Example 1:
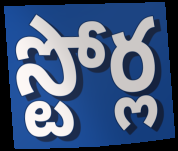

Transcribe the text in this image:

స్టోర్ల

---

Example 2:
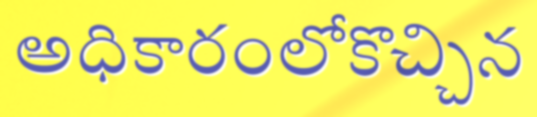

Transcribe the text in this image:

అధికారంలోకొచ్చిన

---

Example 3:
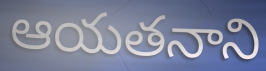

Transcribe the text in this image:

ఆయతనాని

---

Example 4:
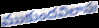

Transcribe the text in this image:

ముకుందవిలాసః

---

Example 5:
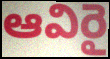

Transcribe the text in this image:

ఆవిరై